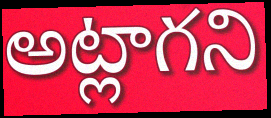
అట్లాగని